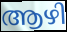
ആഴി